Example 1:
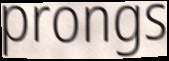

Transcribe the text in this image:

prongs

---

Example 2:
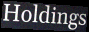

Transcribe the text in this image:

Holdings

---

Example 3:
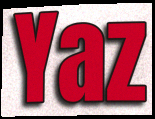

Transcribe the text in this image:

Yaz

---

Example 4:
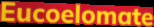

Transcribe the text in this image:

Eucoelomate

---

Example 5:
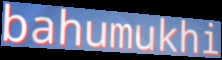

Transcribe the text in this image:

bahumukhi